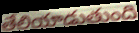
తేలియాడుతుంది